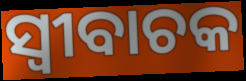
ସ୍ବୀବାଚକ